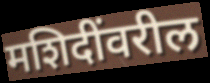
मशिदींवरील